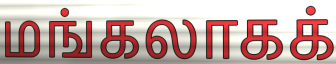
மங்கலாகக்